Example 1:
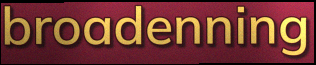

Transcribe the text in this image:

broadenning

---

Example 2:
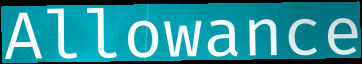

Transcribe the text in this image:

Allowance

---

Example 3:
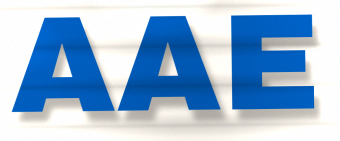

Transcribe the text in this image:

AAE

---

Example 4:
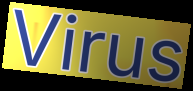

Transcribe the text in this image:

Virus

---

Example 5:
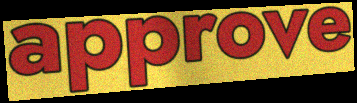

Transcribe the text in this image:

approve